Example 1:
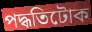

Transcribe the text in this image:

পদ্ধতিটোক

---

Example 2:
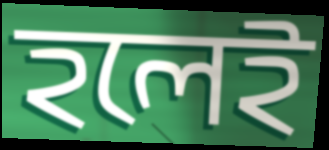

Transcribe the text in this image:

হলেই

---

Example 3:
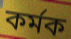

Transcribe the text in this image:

কৰ্মক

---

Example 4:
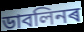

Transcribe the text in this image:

ডাবলিনৰ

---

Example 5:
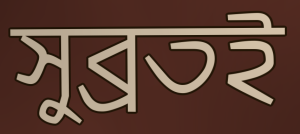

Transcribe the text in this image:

সুব্ৰতই